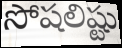
సోషలిష్టు